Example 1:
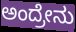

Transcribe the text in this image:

ಅಂದ್ರೇನು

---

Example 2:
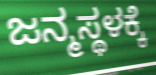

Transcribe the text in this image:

ಜನ್ಮಸ್ಥಳಕ್ಕೆ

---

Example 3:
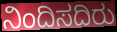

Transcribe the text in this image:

ನಿಂದಿಸದಿರು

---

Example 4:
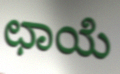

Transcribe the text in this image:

ಛಾಯೆ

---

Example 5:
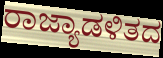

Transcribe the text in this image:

ರಾಜ್ಯಾಡಳಿತದ